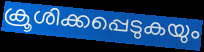
ക്രൂശിക്കപ്പെടുകയും